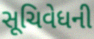
સૂચિવેધની